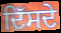
ਦਿੱਸਦੇ